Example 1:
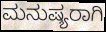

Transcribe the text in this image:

ಮನುಷ್ಯರಾಗಿ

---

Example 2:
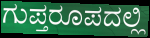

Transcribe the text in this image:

ಗುಪ್ತರೂಪದಲ್ಲಿ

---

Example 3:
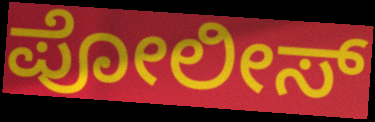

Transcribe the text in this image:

ಪೋಲೀಸ್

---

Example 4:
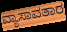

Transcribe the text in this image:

ವ್ಯಾಸಾವತಾರ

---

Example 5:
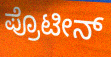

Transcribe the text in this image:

ಪ್ರೊಟೀನ್